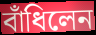
বাঁধিলেন